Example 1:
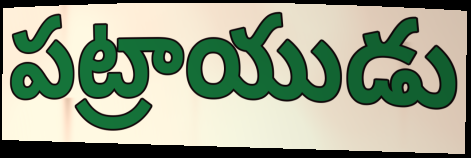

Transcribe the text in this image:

పట్రాయుడు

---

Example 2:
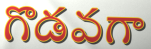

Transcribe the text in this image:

గొడవగా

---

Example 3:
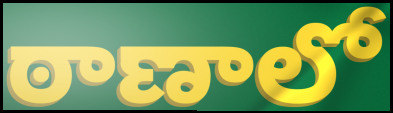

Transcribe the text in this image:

ఠాణాలో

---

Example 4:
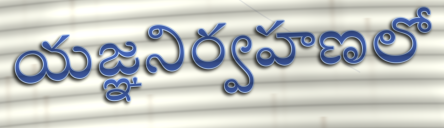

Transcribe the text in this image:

యజ్ఞనిర్వహణలో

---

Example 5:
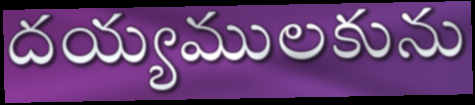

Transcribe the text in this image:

దయ్యములకును